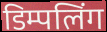
डिम्पलिंग